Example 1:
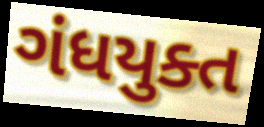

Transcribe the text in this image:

ગંધયુક્ત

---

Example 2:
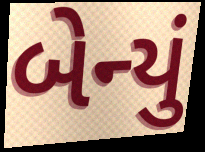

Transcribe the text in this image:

બેન્યું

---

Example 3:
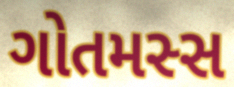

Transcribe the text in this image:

ગોતમસ્સ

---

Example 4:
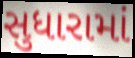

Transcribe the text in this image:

સુધારામાં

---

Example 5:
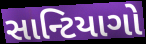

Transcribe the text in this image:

સાન્ટિયાગો